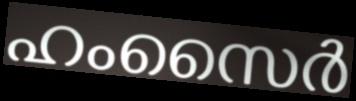
ഹംസൈർ